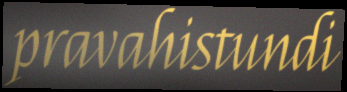
pravahistundi